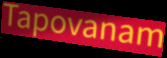
Tapovanam